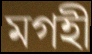
মগহী